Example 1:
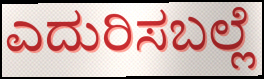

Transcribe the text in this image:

ಎದುರಿಸಬಲ್ಲೆ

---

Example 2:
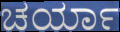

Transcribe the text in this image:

ಚರ್ಯಾ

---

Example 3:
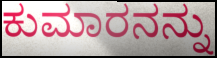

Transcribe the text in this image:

ಕುಮಾರನನ್ನು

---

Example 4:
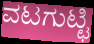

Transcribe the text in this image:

ವಟಗುಟ್ಟಿ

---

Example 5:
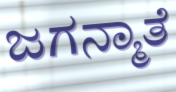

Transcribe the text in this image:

ಜಗನ್ಮಾತೆ